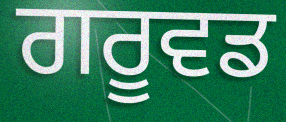
ਗਰੂਵਡ